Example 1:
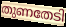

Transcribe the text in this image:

തുണതേടി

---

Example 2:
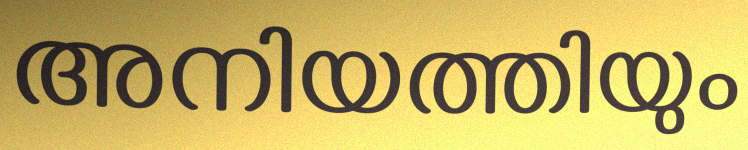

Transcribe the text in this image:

അനിയത്തിയും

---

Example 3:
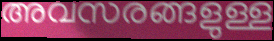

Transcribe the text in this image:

അവസരങ്ങളുള്ള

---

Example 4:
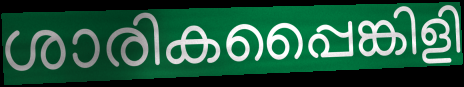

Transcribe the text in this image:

ശാരികപ്പൈങ്കിളി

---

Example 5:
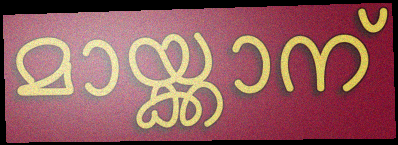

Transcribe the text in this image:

മായ്ക്കാന്